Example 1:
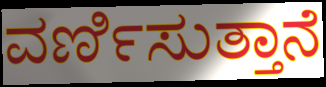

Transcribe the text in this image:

ವರ್ಣಿಸುತ್ತಾನೆ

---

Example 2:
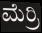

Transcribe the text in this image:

ಮೆರ್ರಿ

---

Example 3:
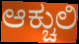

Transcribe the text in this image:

ಆಕ್ಚುಲಿ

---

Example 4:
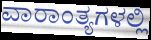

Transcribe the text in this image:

ವಾರಾಂತ್ಯಗಳಲ್ಲಿ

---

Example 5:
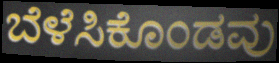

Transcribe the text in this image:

ಬೆಳೆಸಿಕೊಂಡವು